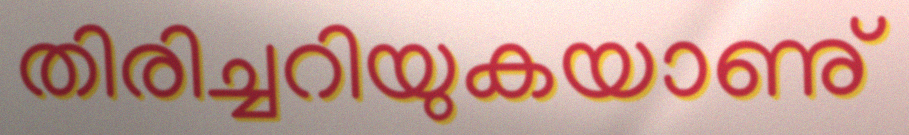
തിരിച്ചറിയുകയാണു്